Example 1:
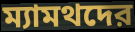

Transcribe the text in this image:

ম্যামথদের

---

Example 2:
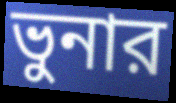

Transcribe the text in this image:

ভুনার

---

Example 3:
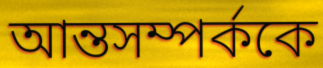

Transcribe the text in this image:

আন্তসম্পর্ককে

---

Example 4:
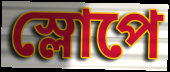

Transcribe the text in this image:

স্লোপে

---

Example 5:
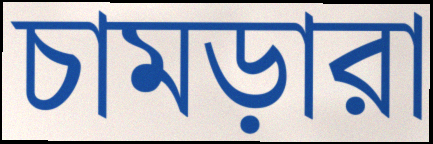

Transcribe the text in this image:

চামড়ারা